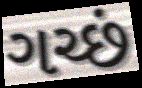
ગચ્છં